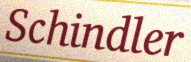
Schindler